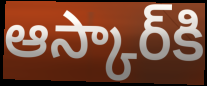
ఆస్కార్‌కి